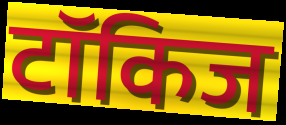
टॉकिज